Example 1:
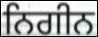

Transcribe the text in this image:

ਨਿਗੀਨ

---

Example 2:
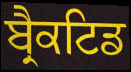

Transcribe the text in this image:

ਬ੍ਰੈਕਟਿਡ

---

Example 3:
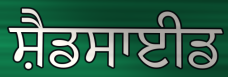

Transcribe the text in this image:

ਸ਼ੈਡਸਾਈਡ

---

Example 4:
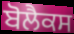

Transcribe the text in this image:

ਬੋਲੈਕਸ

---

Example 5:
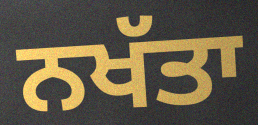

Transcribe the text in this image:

ਨਖੱਤਾ